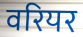
वरियर